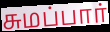
சுமப்பார்